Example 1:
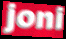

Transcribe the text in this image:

joni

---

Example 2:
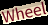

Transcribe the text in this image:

Wheel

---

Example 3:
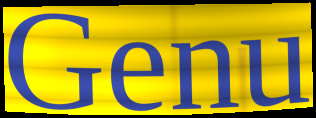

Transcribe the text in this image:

Genu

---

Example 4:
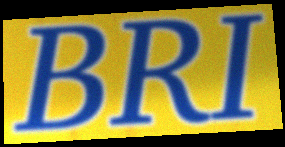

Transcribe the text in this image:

BRI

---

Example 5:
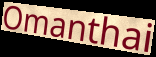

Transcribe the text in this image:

Omanthai